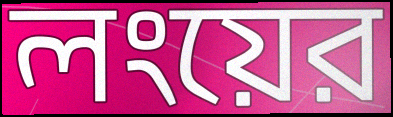
লংয়ের